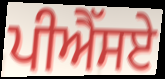
ਪੀਐੱਸਏ